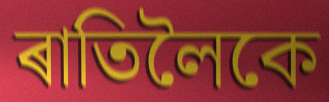
ৰাতিলৈকে